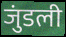
जुंडली